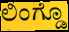
ಲಿಂಗ್ಡೊ